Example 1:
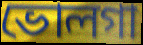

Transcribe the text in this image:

ভোলগা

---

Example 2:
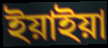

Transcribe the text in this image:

ইয়াইয়া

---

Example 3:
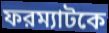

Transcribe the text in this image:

ফরম্যাটকে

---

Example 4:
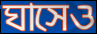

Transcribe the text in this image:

ঘাসেও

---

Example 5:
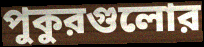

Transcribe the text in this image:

পুকুরগুলোর